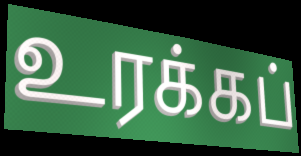
உரக்கப்